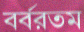
বর্বরতম